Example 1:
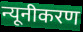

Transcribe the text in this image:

न्यूनीकरण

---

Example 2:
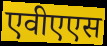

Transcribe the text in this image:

एवीएएस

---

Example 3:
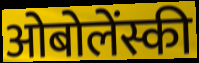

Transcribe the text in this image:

ओबोलेंस्की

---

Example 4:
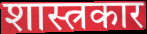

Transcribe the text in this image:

शास्त्रकार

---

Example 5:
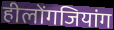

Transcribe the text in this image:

हीलोंगजियांग